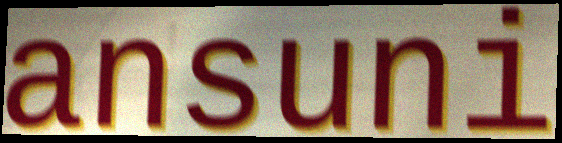
ansuni